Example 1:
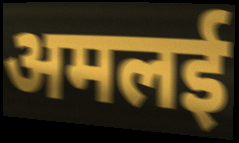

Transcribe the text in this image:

अमलई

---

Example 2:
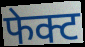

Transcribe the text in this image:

फेक्ट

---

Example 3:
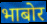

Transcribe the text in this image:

भाबोर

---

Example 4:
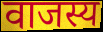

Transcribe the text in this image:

वाजस्य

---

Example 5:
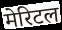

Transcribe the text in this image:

मेरिटल